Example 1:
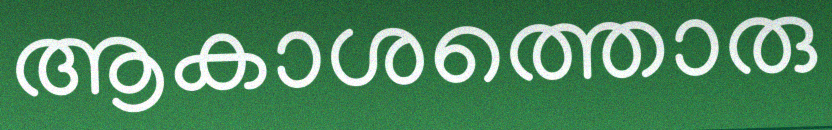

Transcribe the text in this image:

ആകാശത്തൊരു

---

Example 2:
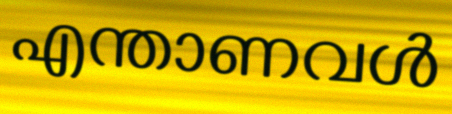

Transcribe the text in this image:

എന്താണവൾ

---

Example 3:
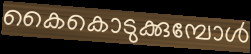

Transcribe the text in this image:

കൈകൊടുക്കുമ്പോൾ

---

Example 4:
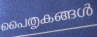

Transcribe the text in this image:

പൈതൃകങ്ങൾ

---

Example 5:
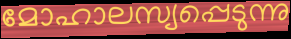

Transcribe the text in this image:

മോഹാലസ്യപ്പെടുന്നു